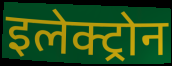
इलेक्ट्रोन